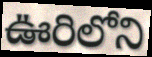
ఊరిలోని